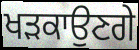
ਖੜਕਾਉਣਗੇ